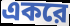
একরে